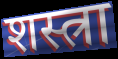
शस्त्रा